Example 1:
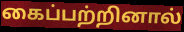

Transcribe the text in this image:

கைப்பற்றினால்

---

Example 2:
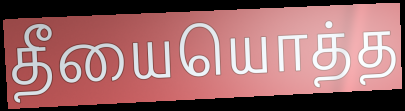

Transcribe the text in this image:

தீயையொத்த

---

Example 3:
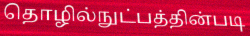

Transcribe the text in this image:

தொழில்நுட்பத்தின்படி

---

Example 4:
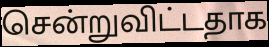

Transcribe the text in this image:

சென்றுவிட்டதாக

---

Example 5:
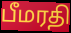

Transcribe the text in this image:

பீமரதி